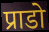
प्राडो